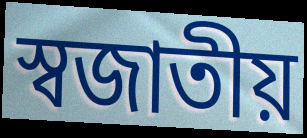
স্বজাতীয়